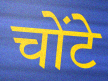
चोंटे